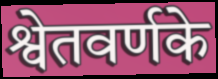
श्वेतवर्णके